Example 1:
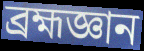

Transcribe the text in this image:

ব্রহ্মজ্ঞান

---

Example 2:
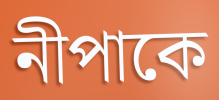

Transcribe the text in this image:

নীপাকে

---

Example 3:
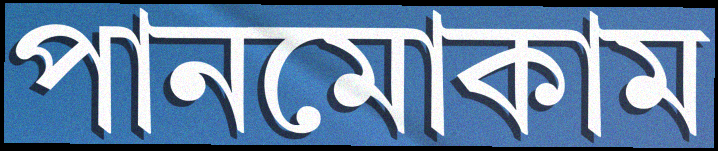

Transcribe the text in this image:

পানমোকাম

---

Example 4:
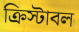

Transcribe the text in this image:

ক্রিস্টাবল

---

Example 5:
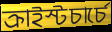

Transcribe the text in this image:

ক্রাইস্টচার্চে